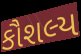
કૌશલ્ય